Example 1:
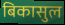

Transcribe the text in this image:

बिकासुल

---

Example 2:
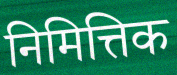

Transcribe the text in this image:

निमित्तिक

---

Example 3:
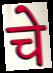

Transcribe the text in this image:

चे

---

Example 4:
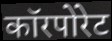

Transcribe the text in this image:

कॉरपोरेट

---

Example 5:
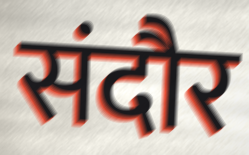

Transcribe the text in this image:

संदौर